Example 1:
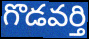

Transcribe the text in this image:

గొడవర్తి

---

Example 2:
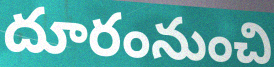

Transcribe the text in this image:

దూరంనుంచి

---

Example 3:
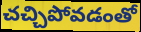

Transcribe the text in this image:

చచ్చిపోవడంతో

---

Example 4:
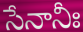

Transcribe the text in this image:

సేనానీః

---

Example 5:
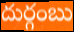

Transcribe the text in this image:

దుర్గంబు